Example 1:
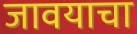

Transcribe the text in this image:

जावयाचा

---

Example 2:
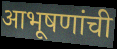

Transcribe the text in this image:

आभूषणांची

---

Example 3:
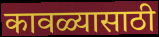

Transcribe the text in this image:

कावळ्यासाठी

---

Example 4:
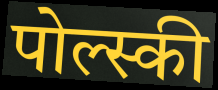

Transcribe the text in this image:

पोल्स्की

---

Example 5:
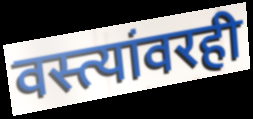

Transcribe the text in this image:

वस्त्यांवरही